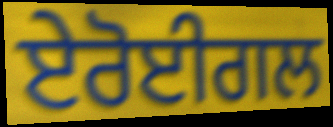
ਏਰੋਈਗਲ